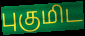
புகுமிட